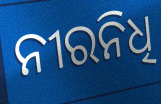
ନୀରନିଧି